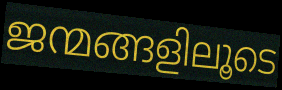
ജന്മങ്ങളിലൂടെ